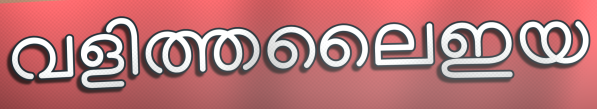
വളിത്തലൈഇയ